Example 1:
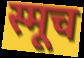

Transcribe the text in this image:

स्मूच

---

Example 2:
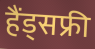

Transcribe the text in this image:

हैंड्सफ्री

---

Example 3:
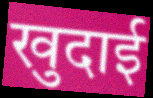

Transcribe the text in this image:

खुदाई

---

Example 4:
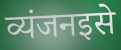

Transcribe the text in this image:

व्यंजनइसे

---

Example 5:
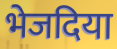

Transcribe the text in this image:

भेजदिया